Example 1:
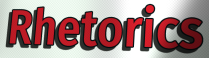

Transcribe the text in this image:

Rhetorics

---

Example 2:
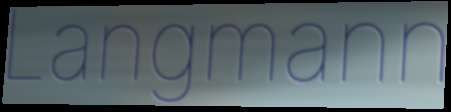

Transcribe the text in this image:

Langmann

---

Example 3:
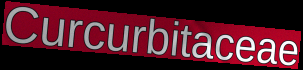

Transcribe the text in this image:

Curcurbitaceae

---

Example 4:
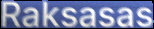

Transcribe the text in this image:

Raksasas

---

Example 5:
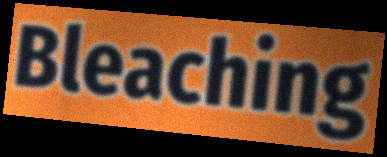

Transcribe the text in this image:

Bleaching